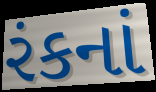
રંકનાં